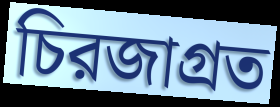
চিরজাগ্রত